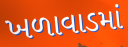
ખળાવાડમાં